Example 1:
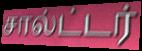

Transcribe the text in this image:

சால்ட்டர்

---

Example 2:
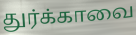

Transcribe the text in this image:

துர்க்காவை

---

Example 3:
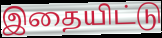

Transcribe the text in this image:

இதையிட்டு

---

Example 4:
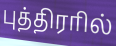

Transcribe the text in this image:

புத்திரரில்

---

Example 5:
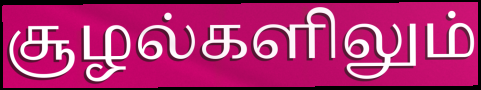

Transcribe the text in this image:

சூழல்களிலும்